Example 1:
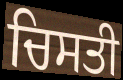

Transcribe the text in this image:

ਚਿਸਤੀ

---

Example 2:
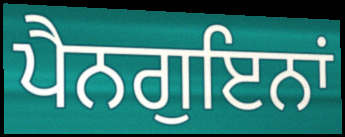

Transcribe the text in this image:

ਪੈਨਗੁਇਨਾਂ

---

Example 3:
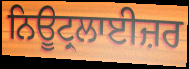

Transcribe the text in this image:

ਨਿਊਟ੍ਰਲਾਈਜ਼ਰ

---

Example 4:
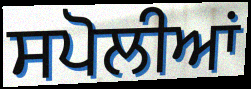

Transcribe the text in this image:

ਸਪੋਲੀਆਂ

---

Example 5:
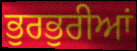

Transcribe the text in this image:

ਭੁਰਭੁਰੀਆਂ